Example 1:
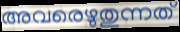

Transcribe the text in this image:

അവരെഴുതുന്നത്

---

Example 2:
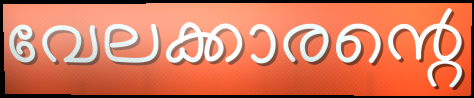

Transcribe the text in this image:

വേലക്കാരന്റെ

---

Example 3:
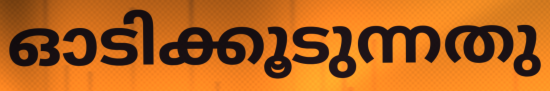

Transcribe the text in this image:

ഓടിക്കൂടുന്നതു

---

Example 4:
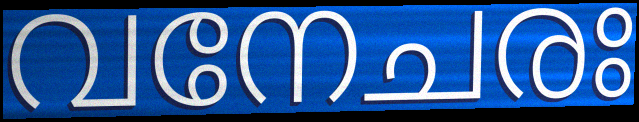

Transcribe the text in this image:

വനേചരഃ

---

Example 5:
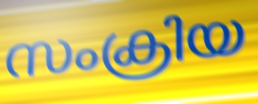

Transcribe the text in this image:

സംക്രിയ